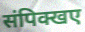
संपिक्खए